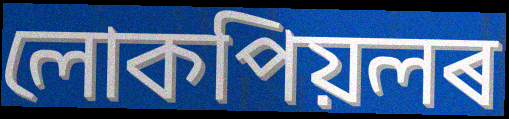
লোকপিয়লৰ